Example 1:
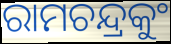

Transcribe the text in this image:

ରାମଚନ୍ଦ୍ରକୁଂ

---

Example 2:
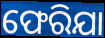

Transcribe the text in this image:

ଫେରିଯା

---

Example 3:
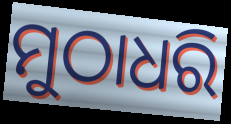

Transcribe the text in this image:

ମୁଠାଧରି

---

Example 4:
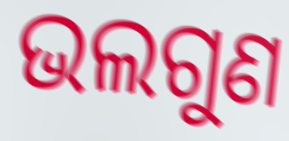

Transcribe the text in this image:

ଭଲଗୁଣ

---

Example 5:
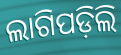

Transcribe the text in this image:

ଲାଗିପଡ଼ିଲି